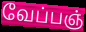
வேப்பஞ்